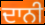
ਦਾਨੀ